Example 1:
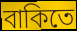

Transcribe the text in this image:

বাকিতে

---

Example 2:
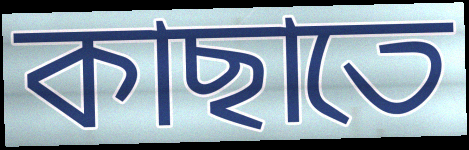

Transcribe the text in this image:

কাছাতে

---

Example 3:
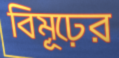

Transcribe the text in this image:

বিমূঢ়ের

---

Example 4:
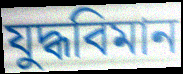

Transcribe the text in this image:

যুদ্ধবিমান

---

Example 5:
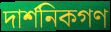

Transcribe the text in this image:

দার্শনিকগণ